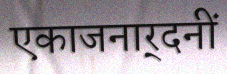
एकाजनार्दनीं